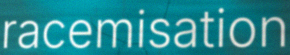
racemisation